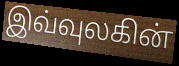
இவ்வுலகின்